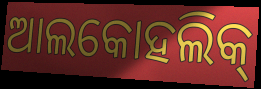
ଆଲକୋହଲିକ୍